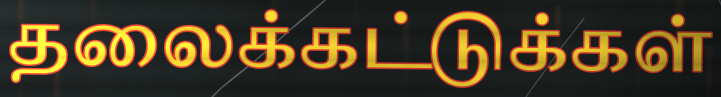
தலைக்கட்டுக்கள்